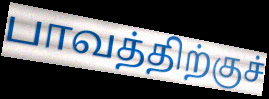
பாவத்திற்குச்